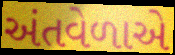
અંતવેળાએ